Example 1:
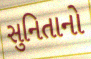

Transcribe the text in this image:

સુનિતાનો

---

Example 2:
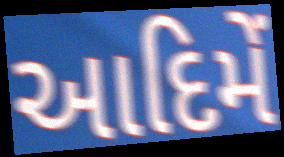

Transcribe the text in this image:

આદિમેં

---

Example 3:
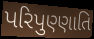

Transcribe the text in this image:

પરિપુણ્ણાતિ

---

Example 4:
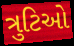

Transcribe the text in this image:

ત્રુટિઓ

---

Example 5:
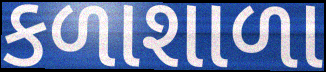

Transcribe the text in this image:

કળાશાળા